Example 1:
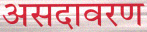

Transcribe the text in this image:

असदावरण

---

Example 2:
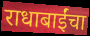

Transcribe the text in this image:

राधाबाईंचा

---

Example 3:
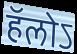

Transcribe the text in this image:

हॅलोऽ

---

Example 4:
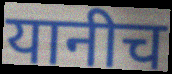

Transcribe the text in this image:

यानीच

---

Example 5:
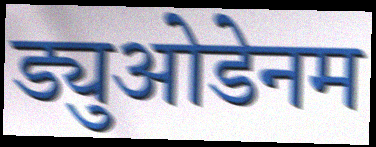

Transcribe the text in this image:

ड्युओडेनम